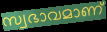
സ്വഭാവമാണ്